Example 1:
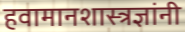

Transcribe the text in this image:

हवामानशास्त्रज्ञांनी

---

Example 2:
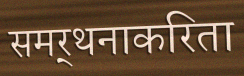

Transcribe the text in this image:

समर्थनाकरिता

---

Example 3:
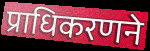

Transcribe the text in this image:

प्राधिकरणने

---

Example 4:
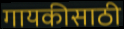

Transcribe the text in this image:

गायकीसाठी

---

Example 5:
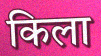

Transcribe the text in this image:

किला